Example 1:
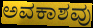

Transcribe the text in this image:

ಅವಕಾಶವು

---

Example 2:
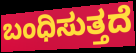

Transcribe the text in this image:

ಬಂಧಿಸುತ್ತದೆ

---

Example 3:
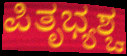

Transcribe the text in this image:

ಪಿತೃಭ್ಯಶ್ಚ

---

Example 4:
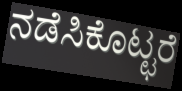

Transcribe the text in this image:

ನಡೆಸಿಕೊಟ್ಟರೆ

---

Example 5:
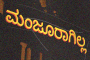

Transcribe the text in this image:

ಮಂಜೂರಾಗಿಲ್ಲ